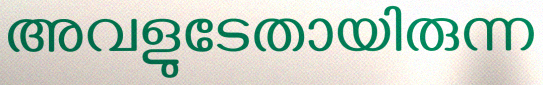
അവളുടേതായിരുന്ന